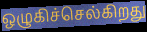
ஒழுகிச்செல்கிறது